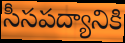
సీసపద్యానికి